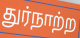
துர்நாற்ற